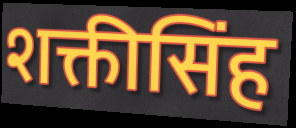
शक्तीसिंह